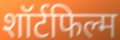
शॉर्टफिल्म